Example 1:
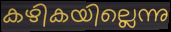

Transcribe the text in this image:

കഴികയില്ലെന്നു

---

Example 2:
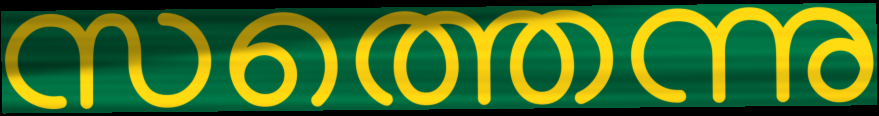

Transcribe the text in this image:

സത്തെന്നു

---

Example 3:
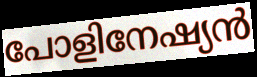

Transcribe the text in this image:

പോളിനേഷ്യൻ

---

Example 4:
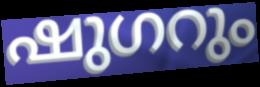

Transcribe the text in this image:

ഷുഗറും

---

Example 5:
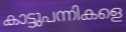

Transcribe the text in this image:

കാട്ടുപന്നികളെ